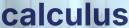
calculus